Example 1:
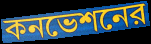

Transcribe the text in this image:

কনভেশনের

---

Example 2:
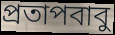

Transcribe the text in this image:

প্রতাপবাবু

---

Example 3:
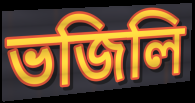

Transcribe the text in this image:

ভজিলি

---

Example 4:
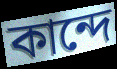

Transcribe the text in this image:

কান্দে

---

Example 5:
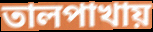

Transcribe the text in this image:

তালপাখায়